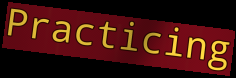
Practicing